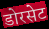
डोरसेट